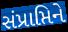
સંપ્રાપ્તિને